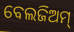
ବେଲଜିଅମ୍